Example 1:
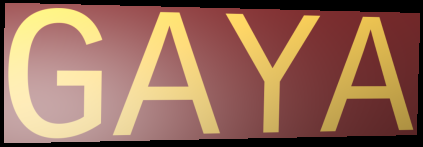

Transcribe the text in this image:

GAYA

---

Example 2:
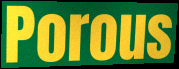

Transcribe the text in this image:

Porous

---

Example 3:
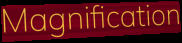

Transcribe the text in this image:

Magnification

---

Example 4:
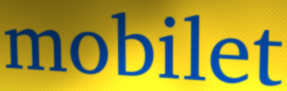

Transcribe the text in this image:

mobilet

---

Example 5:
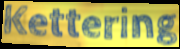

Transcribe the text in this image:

Kettering